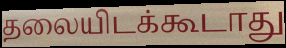
தலையிடக்கூடாது